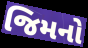
જિમનો